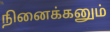
நினைக்கனும்